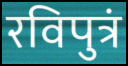
रविपुत्रं